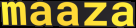
maaza